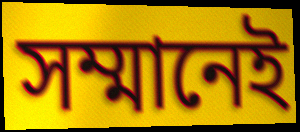
সম্মানেই